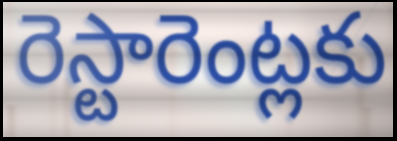
రెస్టారెంట్లకు